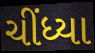
ચીંધ્યા